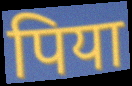
पिया